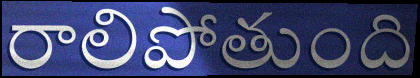
రాలిపోతుంది